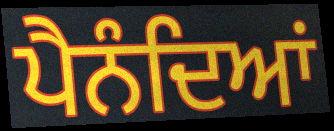
ਪੈਨੰਦਿਆਂ